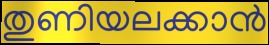
തുണിയലക്കാൻ